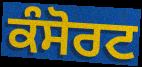
ਕੰਸੋਰਟ